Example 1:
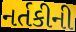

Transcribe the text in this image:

નર્તકીની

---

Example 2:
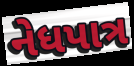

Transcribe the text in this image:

નેધપાત્ર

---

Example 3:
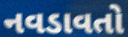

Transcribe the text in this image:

નવડાવતો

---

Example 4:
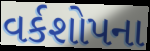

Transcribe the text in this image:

વર્કશોપના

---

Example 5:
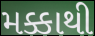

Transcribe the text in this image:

મક્કાથી